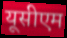
यूसीएम